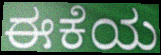
ಈಕೆಯ